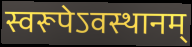
स्वरूपेऽवस्थानम्